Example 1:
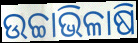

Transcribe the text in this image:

ଉଚ୍ଚାଭିଳାଷି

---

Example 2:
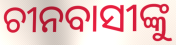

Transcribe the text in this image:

ଚୀନବାସୀଙ୍କୁ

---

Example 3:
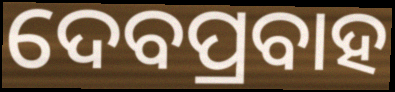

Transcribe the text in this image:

ଦେବପ୍ରବାହ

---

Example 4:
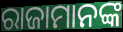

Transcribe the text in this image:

ରାଜାମାନଙ୍କ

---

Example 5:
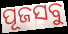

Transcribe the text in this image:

ପୂଜସବୁ